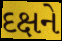
દક્ષને